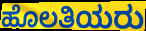
ಹೊಲತಿಯರು